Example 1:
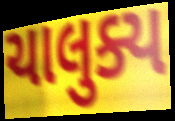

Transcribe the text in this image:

ચાલુક્ય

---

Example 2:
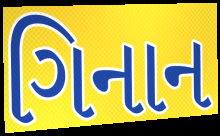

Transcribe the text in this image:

ગિનાન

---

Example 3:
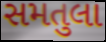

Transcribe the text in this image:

સમતુલા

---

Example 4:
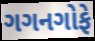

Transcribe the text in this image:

ગગનગોફે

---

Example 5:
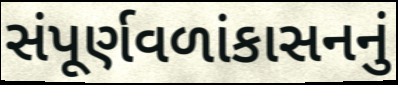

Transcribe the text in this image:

સંપૂર્ણવળાંકાસનનું